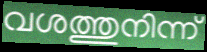
വശത്തുനിന്ന്